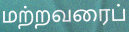
மற்றவரைப்